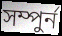
সম্পুৰ্ন